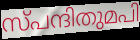
സ്പന്ദിതുമപി